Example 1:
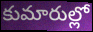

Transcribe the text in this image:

కుమారుల్లో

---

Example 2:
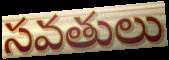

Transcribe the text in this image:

సవతులు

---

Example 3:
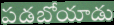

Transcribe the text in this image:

పడబోయాడు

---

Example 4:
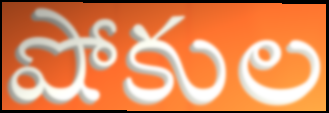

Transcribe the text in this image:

షోకుల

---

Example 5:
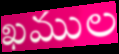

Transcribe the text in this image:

ఖముల